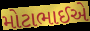
મોટાભાઈએ